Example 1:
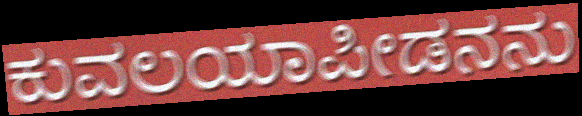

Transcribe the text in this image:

ಕುವಲಯಾಪೀಡನನು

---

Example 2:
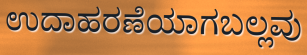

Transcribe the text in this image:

ಉದಾಹರಣೆಯಾಗಬಲ್ಲವು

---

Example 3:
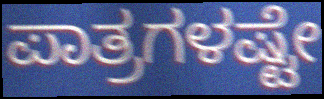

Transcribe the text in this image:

ಪಾತ್ರಗಳಷ್ಟೇ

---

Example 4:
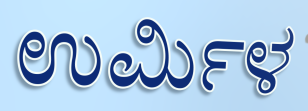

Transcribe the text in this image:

ಉರ್ಮಿಳ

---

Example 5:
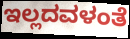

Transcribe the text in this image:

ಇಲ್ಲದವಳಂತೆ